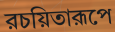
রচয়িতারূপে